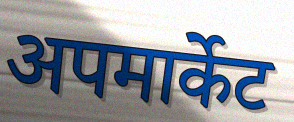
अपमार्केट